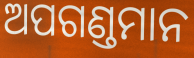
ଅପଗଣ୍ଡମାନ